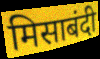
मिसाबंदी